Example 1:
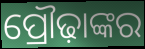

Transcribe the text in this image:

ପ୍ରୌଢ଼ାଙ୍କର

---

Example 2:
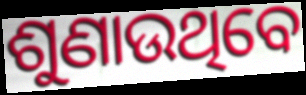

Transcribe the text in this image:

ଶୁଣାଉଥିବେ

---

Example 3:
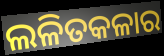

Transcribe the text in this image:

ଲଳିତକଳାର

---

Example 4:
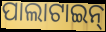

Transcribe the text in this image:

ପାଲାଟାଇନ୍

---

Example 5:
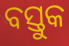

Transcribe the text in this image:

ବସ୍ତୁକ